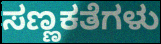
ಸಣ್ಣಕತೆಗಳು